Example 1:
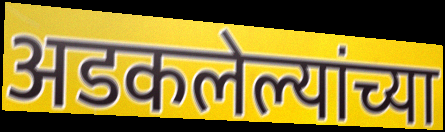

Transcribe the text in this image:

अडकलेल्यांच्या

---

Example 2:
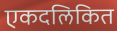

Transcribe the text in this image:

एकदलिकित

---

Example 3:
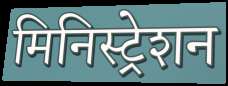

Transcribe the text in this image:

मिनिस्ट्रेशन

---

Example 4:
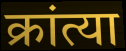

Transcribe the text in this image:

क्रांत्या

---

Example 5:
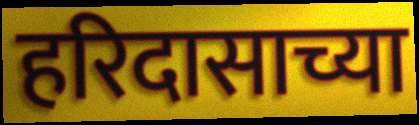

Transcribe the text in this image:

हरिदासाच्या